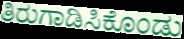
ತಿರುಗಾಡಿಸಿಕೊಂಡು